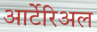
आर्टेरिअल